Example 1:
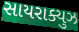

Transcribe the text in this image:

સાયરાક્યુઝ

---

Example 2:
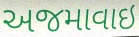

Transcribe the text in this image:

અજમાવાઇ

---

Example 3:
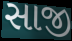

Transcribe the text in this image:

સાજી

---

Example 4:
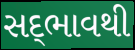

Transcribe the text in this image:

સદ્‍ભાવથી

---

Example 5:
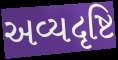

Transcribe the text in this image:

અવ્યદૃષ્ટિ